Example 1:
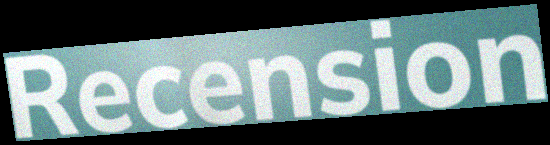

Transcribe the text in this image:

Recension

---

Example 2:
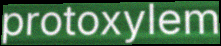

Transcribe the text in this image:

protoxylem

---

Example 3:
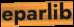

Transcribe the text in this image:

eparlib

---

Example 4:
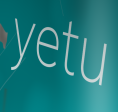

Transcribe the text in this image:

yetu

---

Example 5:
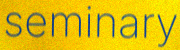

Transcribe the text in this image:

seminary